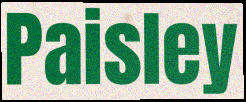
Paisley